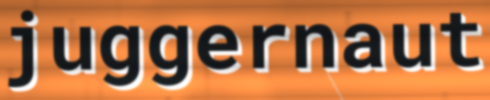
juggernaut